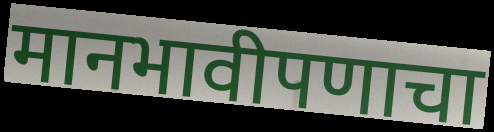
मानभावीपणाचा